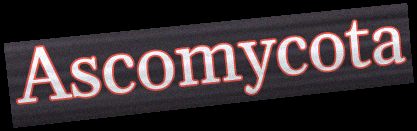
Ascomycota